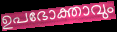
ഉപഭോക്താവും